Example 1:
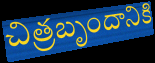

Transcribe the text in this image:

చిత్రబృందానికి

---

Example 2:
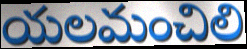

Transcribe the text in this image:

యలమంచిలి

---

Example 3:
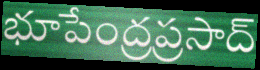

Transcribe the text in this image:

భూపేంద్రప్రసాద్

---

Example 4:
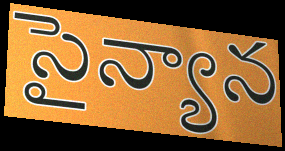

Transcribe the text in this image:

సైన్యాన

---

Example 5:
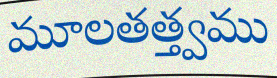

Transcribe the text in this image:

మూలతత్త్వము